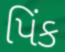
પિંક